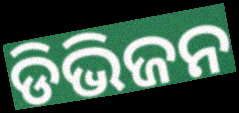
ଡିଭିଜନ